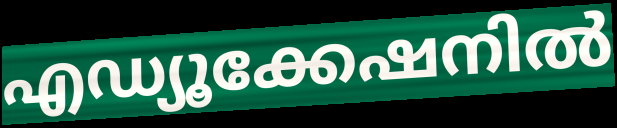
എഡ്യൂക്കേഷനിൽ